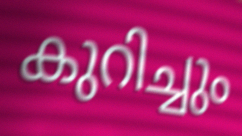
കുറിച്ചും